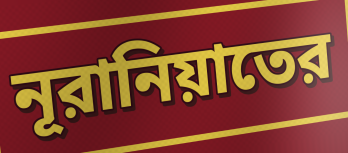
নূরানিয়াতের